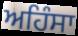
ਅਹਿੰਸਾ